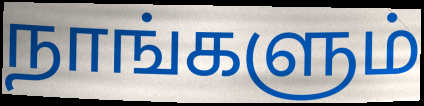
நாங்களும்